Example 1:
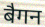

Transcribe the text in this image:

बैगन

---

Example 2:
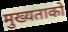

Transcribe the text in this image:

मुख्यताको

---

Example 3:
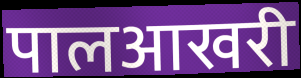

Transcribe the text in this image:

पालआखरी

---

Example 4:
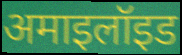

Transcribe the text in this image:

अमाइलॉइड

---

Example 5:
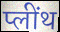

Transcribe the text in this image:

प्लींथ